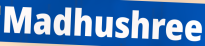
Madhushree